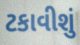
ટકાવીશું